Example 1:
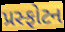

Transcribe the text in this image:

પ્રસ્ફોટન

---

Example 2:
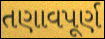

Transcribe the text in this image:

તણાવપૂર્ણ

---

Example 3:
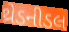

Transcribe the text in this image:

થ્રેડનીડલ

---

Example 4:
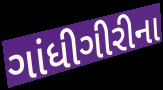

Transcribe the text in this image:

ગાંધીગીરીના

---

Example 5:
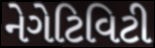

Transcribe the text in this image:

નેગેટિવિટી